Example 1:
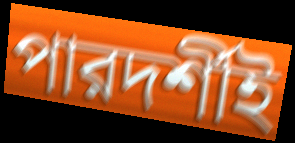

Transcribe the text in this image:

পারদর্শীই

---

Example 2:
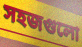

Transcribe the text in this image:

সহজগুলো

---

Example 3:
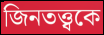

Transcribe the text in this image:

জিনতত্ত্বকে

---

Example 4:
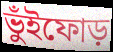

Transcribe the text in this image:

ভুঁইফোড়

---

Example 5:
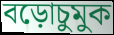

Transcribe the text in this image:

বড়োচুমুক